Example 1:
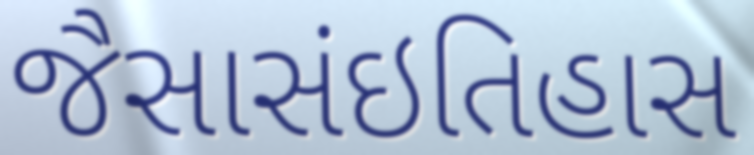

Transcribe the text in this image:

જૈસાસંઇતિહાસ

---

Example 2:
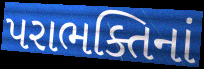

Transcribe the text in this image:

પરાભક્તિનાં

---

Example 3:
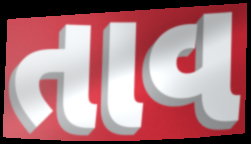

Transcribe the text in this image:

તાવ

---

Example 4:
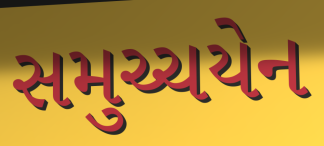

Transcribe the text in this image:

સમુચ્ચયેન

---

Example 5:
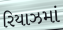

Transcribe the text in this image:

રિયાઝમાં